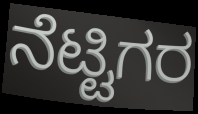
ನೆಟ್ಟಿಗರ